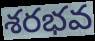
శరభవ